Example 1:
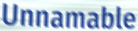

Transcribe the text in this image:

Unnamable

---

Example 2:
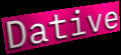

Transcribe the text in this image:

Dative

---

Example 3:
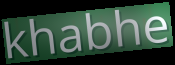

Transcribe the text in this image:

khabhe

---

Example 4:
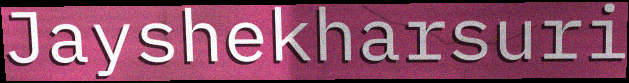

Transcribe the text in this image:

Jayshekharsuri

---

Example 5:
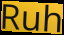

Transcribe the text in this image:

Ruh